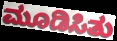
ಮೂಡಿಸಿತು